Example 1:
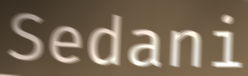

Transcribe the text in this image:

Sedani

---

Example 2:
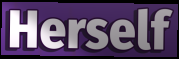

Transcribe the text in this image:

Herself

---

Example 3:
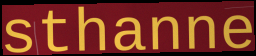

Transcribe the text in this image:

sthanne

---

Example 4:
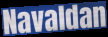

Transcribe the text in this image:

Navaldan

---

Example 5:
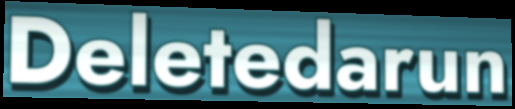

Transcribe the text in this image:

Deletedarun